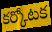
కర్కోటక